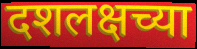
दशलक्षच्या